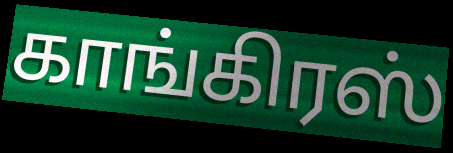
காங்கிரஸ்